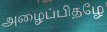
அழைப்பிதழே